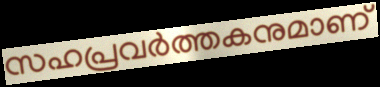
സഹപ്രവർത്തകനുമാണ്